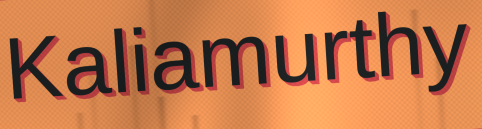
Kaliamurthy